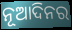
ନୂଆଦିନର